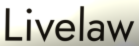
Livelaw